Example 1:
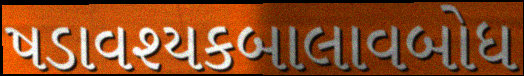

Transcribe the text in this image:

ષડાવશ્યકબાલાવબોધ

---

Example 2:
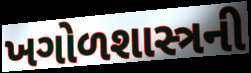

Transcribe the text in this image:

ખગોળશાસ્ત્રની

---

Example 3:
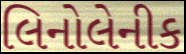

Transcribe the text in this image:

લિનોલેનીક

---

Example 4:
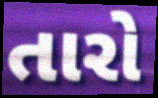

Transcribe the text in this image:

તારો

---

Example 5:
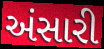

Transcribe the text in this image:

અંસારી